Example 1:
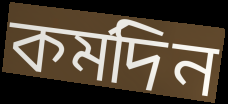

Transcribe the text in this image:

কৰ্মদিন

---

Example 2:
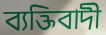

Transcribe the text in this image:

ব্যক্তিবাদী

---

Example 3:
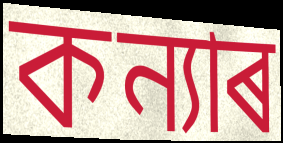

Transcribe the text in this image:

কন্যাৰ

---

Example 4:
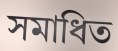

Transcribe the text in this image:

সমাধিত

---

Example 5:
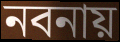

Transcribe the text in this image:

নবনায়